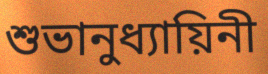
শুভানুধ্যায়িনী